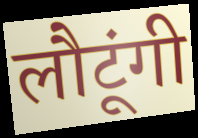
लौटूंगी